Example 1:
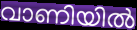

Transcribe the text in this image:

വാണിയിൽ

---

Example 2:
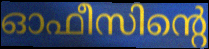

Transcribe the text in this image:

ഓഫീസിന്റെ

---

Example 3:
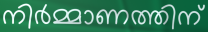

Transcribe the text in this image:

നിർമ്മാണത്തിന്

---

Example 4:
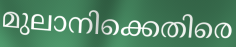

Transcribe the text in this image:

മുലാനിക്കെതിരെ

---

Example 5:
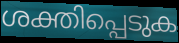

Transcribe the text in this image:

ശക്തിപ്പെടുക